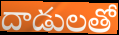
దాడులతో